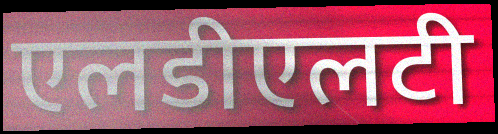
एलडीएलटी